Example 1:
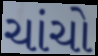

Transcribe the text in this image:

ચાંચો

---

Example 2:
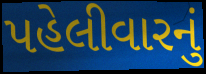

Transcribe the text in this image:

પહેલીવારનું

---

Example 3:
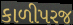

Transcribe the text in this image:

કાળીપરજ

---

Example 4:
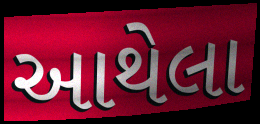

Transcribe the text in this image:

આથેલા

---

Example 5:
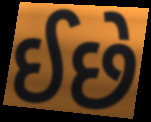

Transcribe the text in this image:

ઈછે